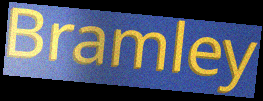
Bramley